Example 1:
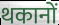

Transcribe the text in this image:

थकानों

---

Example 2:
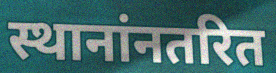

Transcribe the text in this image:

स्थानांनतरित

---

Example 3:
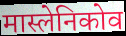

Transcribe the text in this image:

मास्लेनिकोव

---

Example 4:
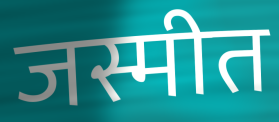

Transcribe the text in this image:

जस्मीत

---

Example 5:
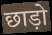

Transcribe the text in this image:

छाड़ो